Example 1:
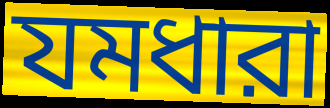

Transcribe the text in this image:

যমধারা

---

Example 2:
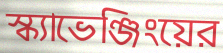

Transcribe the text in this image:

স্ক্যাভেঞ্জিংয়ের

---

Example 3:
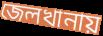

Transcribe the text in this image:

জেলখানায়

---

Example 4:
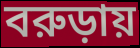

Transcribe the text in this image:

বরুড়ায়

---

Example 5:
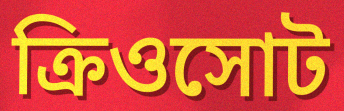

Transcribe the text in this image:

ক্রিওসোট